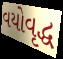
વયોવૃદ્ધ